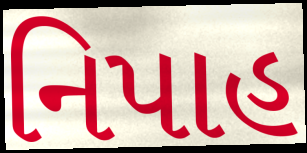
નિપાહ